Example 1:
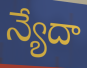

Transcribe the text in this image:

న్యేదా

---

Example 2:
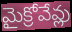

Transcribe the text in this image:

మైక్రోవేవ్లు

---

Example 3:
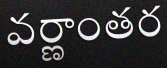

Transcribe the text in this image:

వర్ణాంతర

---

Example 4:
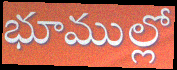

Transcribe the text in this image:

భూముల్లో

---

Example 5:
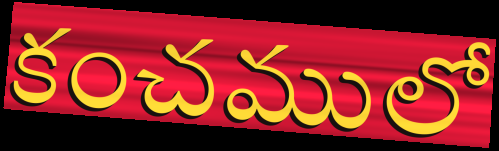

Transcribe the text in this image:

కంచములో